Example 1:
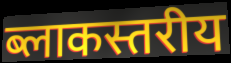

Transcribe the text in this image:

ब्लाकस्तरीय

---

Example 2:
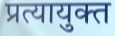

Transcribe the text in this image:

प्रत्यायुक्त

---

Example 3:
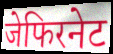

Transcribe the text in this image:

जेफिरनेट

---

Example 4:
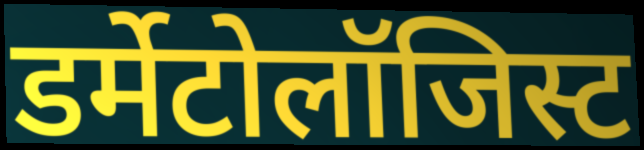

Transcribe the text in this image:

डर्मेटोलॉजिस्ट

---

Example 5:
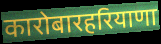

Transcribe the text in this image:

कारोबारहरियाणा